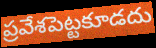
ప్రవేశపెట్టకూడదు